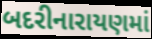
બદરીનારાયણમાં